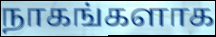
நாகங்களாக